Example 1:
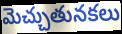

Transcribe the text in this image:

మెచ్చుతునకలు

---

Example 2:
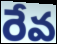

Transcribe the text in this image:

రేవ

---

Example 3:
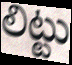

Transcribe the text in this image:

లిట్టు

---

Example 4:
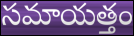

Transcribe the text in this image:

సమాయత్తం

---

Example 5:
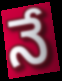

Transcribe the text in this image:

నే